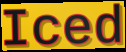
Iced